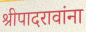
श्रीपादरावांना